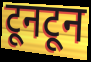
टूनटून